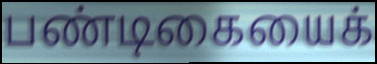
பண்டிகையைக்